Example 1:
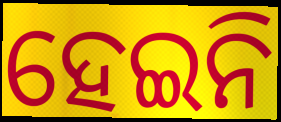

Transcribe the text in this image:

ହେଇନି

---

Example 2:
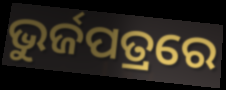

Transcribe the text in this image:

ଭୁର୍ଜପତ୍ରରେ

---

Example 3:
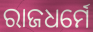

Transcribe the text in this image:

ରାଜଧର୍ମେ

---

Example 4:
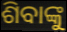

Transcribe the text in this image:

ଶିବାଙ୍କୁ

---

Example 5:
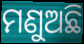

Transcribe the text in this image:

ମଣୁଅଛି